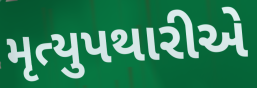
મૃત્યુપથારીએ